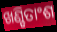
ଖଣ୍ଡିତାଂଶ